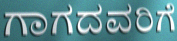
ಗಾಗದವರಿಗೆ